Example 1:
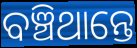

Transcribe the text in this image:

ବଞ୍ଚିଥାନ୍ତେ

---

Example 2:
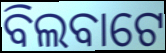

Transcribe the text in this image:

ବିଲବାଟେ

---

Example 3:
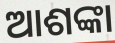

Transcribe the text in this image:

ଆଶଙ୍କା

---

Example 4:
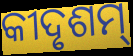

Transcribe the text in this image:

କୀଦୃଶମ୍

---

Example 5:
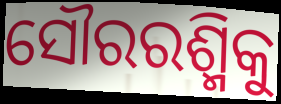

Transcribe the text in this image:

ସୌରରଶ୍ମିକୁ